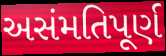
અસંમતિપૂર્ણ